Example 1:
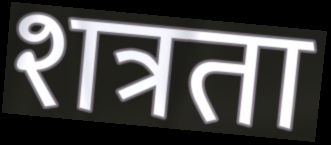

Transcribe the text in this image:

शत्रता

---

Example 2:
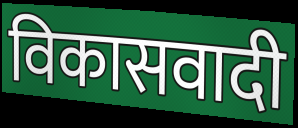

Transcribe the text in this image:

विकासवादी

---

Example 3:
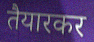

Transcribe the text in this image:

तैयारकर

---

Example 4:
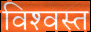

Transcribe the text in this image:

विश्‍वस्त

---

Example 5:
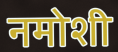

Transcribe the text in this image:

नमोशी